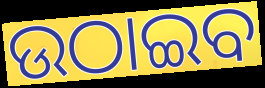
ଉଠାଇବ